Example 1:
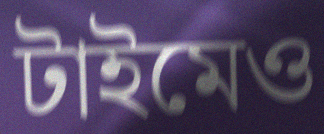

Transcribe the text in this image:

টাইমেও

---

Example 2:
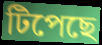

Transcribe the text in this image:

টিপেছে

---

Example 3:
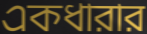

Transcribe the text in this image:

একধারার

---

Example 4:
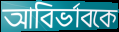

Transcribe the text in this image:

আবির্ভাবকে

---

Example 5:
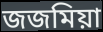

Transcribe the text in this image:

জজমিয়া